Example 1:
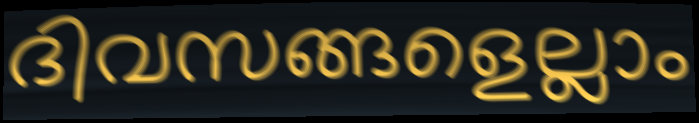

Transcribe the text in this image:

ദിവസങ്ങളെല്ലാം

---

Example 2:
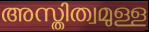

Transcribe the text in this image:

അസ്തിത്വമുള്ള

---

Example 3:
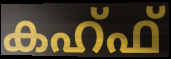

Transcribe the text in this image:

കഹ്ഫ്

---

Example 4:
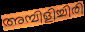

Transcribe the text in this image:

അമ്പിളിച്ചിരി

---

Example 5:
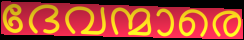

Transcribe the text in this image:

ദേവന്മാരെ